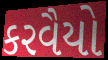
કરવૈયો